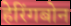
हेरिंगबोन